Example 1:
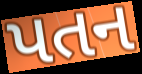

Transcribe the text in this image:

પતન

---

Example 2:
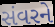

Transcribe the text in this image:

સંવરને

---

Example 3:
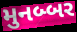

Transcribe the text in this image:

મુનબ્બર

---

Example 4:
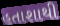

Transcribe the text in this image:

હતાશાથી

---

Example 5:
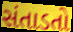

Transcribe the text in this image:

સંતાડતો